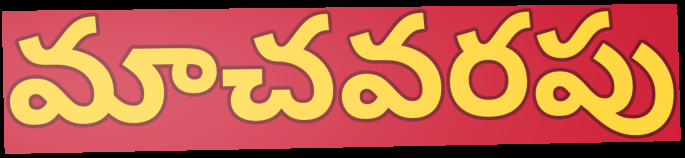
మాచవరపు